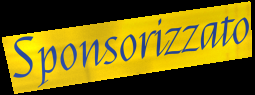
Sponsorizzato